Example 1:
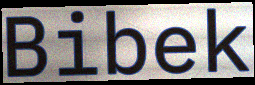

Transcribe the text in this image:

Bibek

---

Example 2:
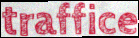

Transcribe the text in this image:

traffice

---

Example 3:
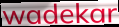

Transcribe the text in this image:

wadekar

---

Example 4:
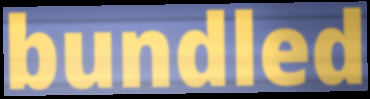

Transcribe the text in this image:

bundled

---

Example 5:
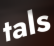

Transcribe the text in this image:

tals